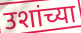
उशांच्या